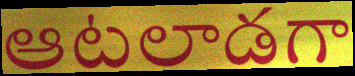
ఆటలాడగా